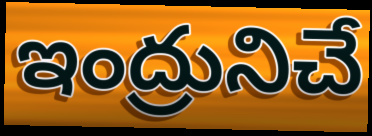
ఇంద్రునిచే